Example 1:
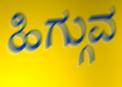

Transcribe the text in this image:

ಹಿಗ್ಗುವ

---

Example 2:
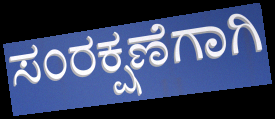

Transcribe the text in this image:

ಸಂರಕ್ಷಣೆಗಾಗಿ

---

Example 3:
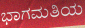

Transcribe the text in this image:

ಭಾಗಮತಿಯ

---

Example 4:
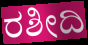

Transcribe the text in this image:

ರಶೀದಿ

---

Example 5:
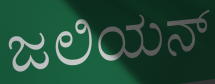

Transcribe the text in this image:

ಜಲಿಯನ್